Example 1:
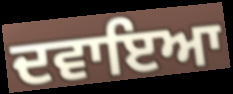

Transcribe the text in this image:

ਦਵਾਇਆ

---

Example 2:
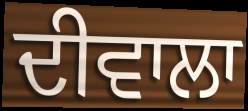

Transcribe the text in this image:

ਦੀਵਾਲਾ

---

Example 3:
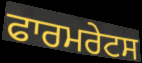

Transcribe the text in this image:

ਫਾਰਮਰੇਟਸ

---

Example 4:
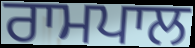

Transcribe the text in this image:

ਰਾਮਪਾਲ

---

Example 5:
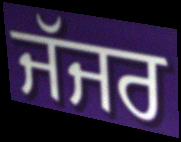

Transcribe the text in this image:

ਜੱਜਰ